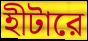
হীটারে